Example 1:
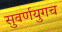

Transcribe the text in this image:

सुवर्णयुगच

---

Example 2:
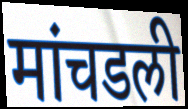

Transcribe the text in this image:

मांचडली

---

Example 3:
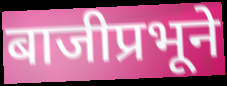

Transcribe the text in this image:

बाजीप्रभूने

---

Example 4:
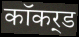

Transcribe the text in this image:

कॉकर्ड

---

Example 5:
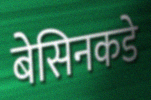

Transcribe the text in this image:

बेसिनकडे